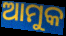
ଆମୁକ